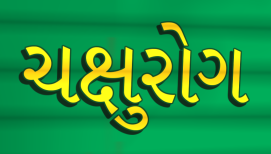
ચક્ષુરોગ